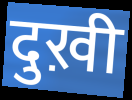
दुख़ी